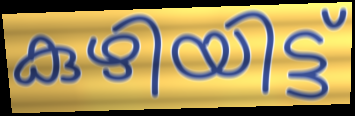
കുഴിയിട്ട്